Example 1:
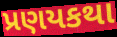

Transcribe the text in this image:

પ્રણયકથા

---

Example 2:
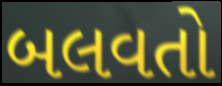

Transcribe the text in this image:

બલવતો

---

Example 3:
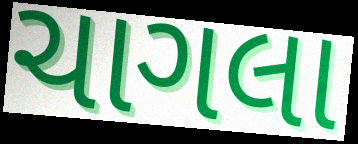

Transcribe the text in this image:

ચાગલા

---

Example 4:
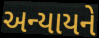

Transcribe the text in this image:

અન્યાયને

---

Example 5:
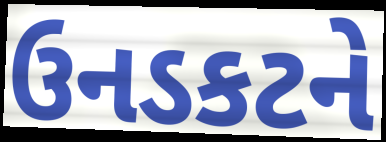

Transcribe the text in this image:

ઉનડકટને